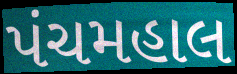
પંચમહાલ